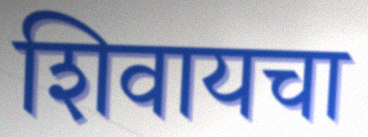
शिवायचा